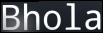
Bhola